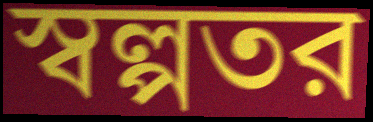
স্বল্পতর